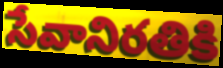
సేవానిరతికి